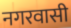
नगरवासी